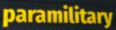
paramilitary